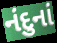
નંદુનાં